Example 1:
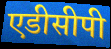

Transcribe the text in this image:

एडीसीपी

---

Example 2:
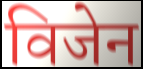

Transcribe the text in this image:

विजेन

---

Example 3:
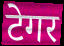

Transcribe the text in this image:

टेगर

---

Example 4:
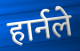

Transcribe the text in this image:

हार्नले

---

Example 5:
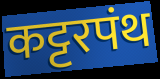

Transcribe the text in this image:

कट्टरपंथ